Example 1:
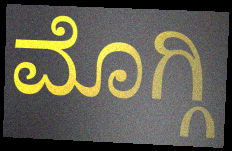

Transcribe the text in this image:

ಮೊಗ್ಗಿ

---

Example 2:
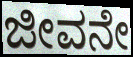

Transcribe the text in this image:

ಜೀವನೇ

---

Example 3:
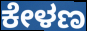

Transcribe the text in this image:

ಕೇಳಣ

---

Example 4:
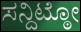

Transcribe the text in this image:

ಸನ್ದಿಟ್ಠೋ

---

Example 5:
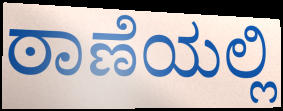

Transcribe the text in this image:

ಠಾಣೆಯಲ್ಲಿ